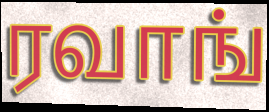
ரவாங்